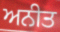
ਅਨੀਤ